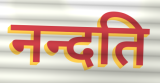
नन्दति